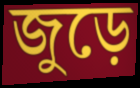
জুড়ে